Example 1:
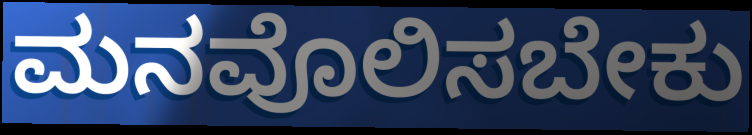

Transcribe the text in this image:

ಮನವೊಲಿಸಬೇಕು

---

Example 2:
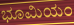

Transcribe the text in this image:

ಭೂಮಿಯಂ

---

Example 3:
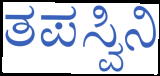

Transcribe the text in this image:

ತಪಸ್ವಿನಿ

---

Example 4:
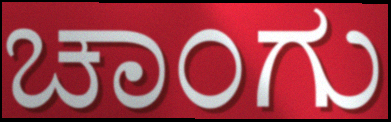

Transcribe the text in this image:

ಚಾಂಗು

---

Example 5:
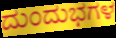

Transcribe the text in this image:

ದುಂದುಭಗಳ